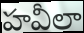
హవీలా